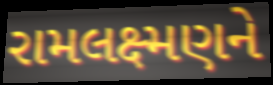
રામલક્ષ્મણને